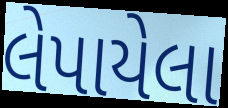
લેપાયેલા